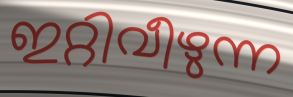
ഇറ്റിവീഴുന്ന